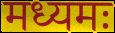
मध्यमः